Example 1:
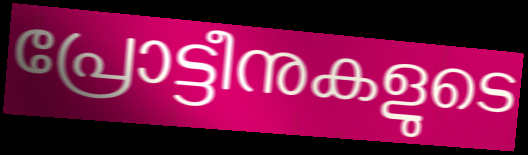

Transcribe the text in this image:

പ്രോട്ടീനുകളുടെ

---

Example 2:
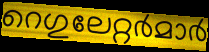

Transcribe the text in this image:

റെഗുലേറ്റർമാർ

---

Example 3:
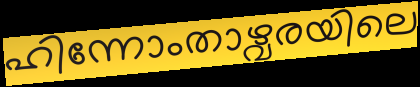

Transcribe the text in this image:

ഹിന്നോംതാഴ്വരയിലെ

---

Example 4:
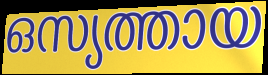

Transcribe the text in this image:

ഒസ്യത്തായ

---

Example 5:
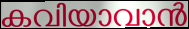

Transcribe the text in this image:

കവിയാവാൻ